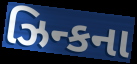
ઝિન્કના